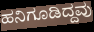
ಹನಿಗೂಡಿದ್ದವು